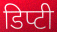
डिप्टी